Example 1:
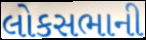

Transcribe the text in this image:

લોકસભાની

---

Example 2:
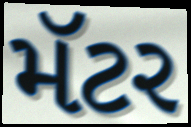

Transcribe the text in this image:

મૅટર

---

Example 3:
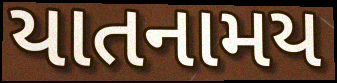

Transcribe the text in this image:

યાતનામય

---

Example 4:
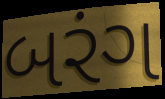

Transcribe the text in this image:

બરંગ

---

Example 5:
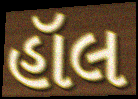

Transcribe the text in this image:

હૉલ